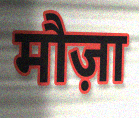
मौज़ा